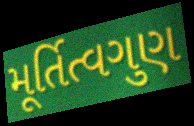
મૂર્તિત્વગુણ